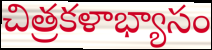
చిత్రకళాభ్యాసం